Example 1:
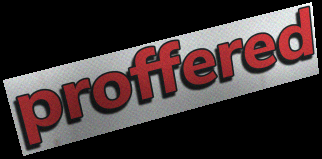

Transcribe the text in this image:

proffered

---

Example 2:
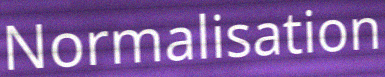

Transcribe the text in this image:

Normalisation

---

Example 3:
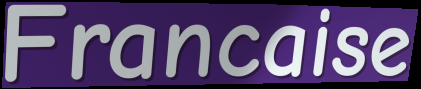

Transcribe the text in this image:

Francaise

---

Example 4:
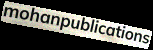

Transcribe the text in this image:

mohanpublications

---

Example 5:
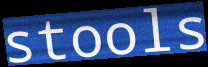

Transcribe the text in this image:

stools